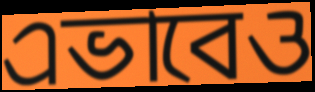
এভাবেও